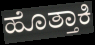
ಹೊತ್ತಾಕಿ